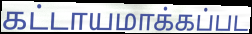
கட்டாயமாக்கப்பட